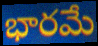
భారమే